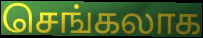
செங்கலாக